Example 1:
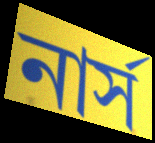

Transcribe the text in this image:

নার্স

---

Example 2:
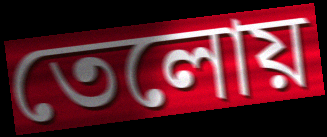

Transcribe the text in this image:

তেলোয়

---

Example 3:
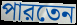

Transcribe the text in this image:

পারতেন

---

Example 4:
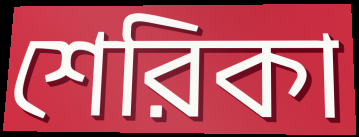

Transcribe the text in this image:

শেরিকা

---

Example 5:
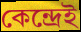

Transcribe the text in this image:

কেন্দ্রেই